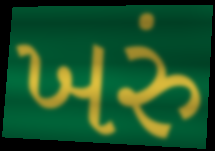
ખરું